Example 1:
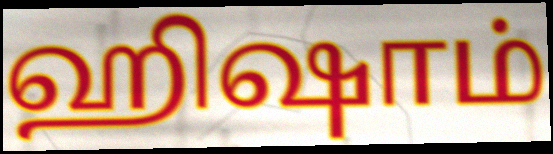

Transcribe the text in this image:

ஹிஷாம்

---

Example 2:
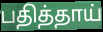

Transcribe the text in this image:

பதித்தாய்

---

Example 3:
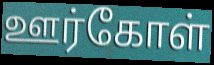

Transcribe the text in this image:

ஊர்கோள்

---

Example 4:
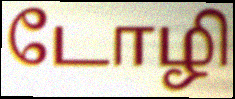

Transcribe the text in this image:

டோழி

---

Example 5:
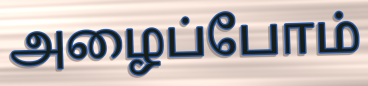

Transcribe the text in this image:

அழைப்போம்